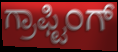
ಗ್ರಾಫ್ಟಿಂಗ್